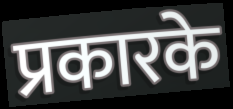
प्रकारके